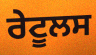
ਰੇਟੂਲਸ